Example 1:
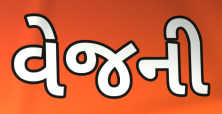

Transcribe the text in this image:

વેજની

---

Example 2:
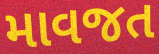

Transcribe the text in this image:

માવજત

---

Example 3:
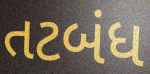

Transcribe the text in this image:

તટબંધ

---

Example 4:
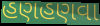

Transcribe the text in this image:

હણહણવા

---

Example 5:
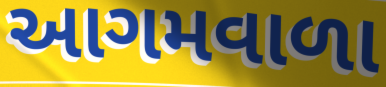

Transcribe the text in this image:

આગમવાળા